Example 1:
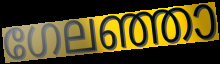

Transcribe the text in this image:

ഗേലഞ്ഞാ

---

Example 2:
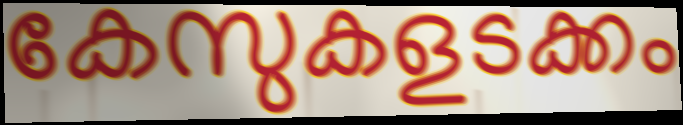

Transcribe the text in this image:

കേസുകളടക്കം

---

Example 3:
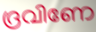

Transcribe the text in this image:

ദ്രവിണേ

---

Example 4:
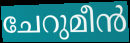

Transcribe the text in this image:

ചേറുമീൻ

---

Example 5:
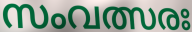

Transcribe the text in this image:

സംവത്സരഃ